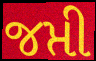
જપ્તી